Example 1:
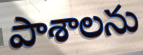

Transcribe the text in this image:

పాశాలను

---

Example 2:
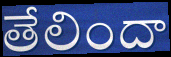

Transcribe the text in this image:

తేలిందా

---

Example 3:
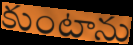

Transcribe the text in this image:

కుంటాను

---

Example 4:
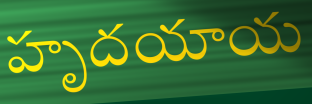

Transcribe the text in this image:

హృదయాయ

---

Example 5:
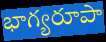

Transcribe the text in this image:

భాగ్యరూపా